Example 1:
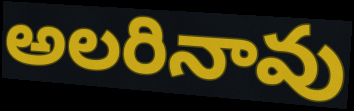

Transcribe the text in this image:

అలరినావు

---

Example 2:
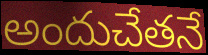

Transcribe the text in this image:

అందుచేతనే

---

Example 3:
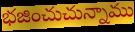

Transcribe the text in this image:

భజించుచున్నాము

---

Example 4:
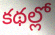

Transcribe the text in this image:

కథల్లో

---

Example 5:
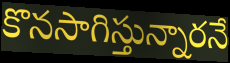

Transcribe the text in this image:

కొనసాగిస్తున్నారనే